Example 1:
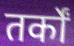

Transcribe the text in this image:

तर्कों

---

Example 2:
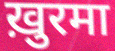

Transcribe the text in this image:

ख़ुरमा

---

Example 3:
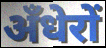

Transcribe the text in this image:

अँधेरों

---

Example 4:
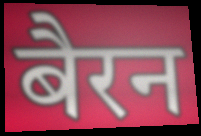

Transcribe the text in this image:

बैरन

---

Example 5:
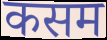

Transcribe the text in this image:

कसम